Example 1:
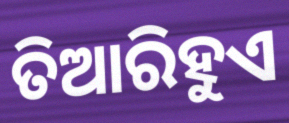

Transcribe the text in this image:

ତିଆରିହୁଏ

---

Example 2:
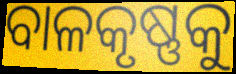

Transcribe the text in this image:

ବାଳକୃଷ୍ଣକୁ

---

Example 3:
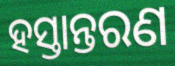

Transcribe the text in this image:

ହସ୍ତାନ୍ତରଣ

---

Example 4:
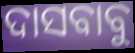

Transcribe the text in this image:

ଦାସବାବୁ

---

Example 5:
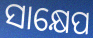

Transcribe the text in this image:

ସାକ୍ଷେପ